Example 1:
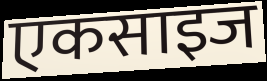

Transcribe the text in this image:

एकसाइज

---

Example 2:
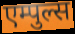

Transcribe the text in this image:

एम्पुल्स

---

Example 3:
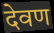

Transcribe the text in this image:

देवण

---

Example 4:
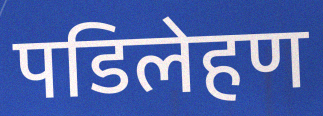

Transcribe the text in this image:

पडिलेहण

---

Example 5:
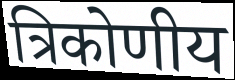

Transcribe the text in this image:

त्रिकोणीय